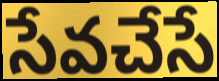
సేవచేసే